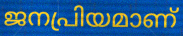
ജനപ്രിയമാണ്